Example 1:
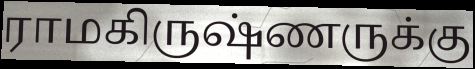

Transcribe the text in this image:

ராமகிருஷ்ணருக்கு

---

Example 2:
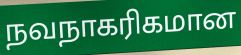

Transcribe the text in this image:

நவநாகரிகமான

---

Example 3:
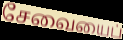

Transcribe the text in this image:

சேவையைப்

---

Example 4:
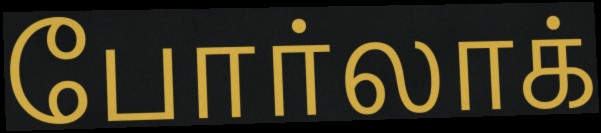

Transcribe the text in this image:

போர்லாக்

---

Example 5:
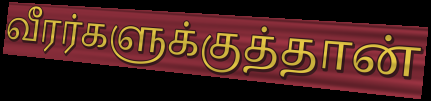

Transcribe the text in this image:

வீரர்களுக்குத்தான்